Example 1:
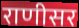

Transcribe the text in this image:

राणीसर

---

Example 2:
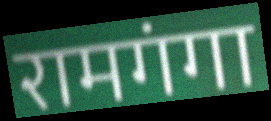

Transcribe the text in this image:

रामगंगा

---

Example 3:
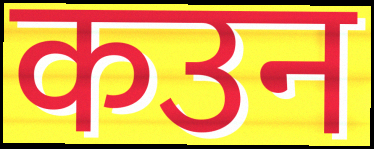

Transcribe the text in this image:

कउन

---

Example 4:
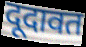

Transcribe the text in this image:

दूदावत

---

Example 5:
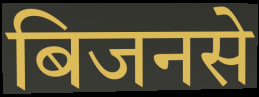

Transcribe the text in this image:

बिजनसे